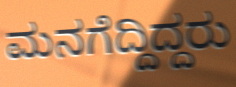
ಮನಗೆದ್ದಿದ್ದರು